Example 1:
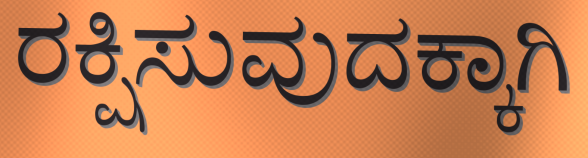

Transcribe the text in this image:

ರಕ್ಷಿಸುವುದಕ್ಕಾಗಿ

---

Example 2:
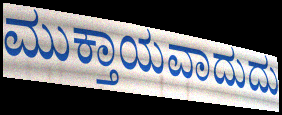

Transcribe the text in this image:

ಮುಕ್ತಾಯವಾದುದು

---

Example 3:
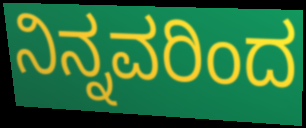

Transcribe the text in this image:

ನಿನ್ನವರಿಂದ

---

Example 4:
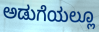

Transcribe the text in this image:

ಅಡುಗೆಯಲ್ಲೂ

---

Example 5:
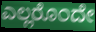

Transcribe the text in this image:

ಎಲ್ಲರೊಂದೇ